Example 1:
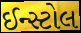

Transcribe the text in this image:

ઈન્સ્ટોલ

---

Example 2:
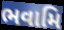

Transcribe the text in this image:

ભવામિ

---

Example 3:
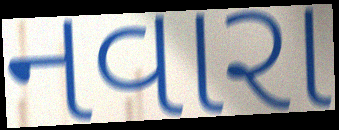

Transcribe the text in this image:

નવારા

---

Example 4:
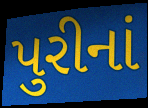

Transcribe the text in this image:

પુરીનાં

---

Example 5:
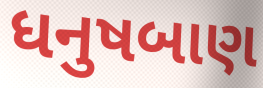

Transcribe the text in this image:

ધનુષબાણ